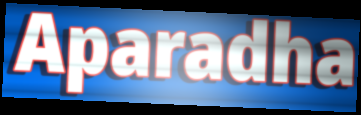
Aparadha